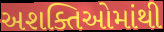
અશક્તિઓમાંથી